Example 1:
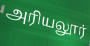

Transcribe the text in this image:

அரியலூர்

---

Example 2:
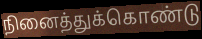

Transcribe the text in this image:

நினைத்துக்கொண்டு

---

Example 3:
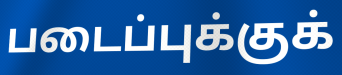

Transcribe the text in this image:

படைப்புக்குக்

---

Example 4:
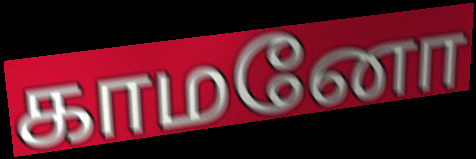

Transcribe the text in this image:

காமனோ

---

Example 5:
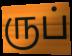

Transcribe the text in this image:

ருப்